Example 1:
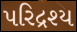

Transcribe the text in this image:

પરિદ્રશ્ય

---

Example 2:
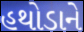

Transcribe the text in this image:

હથોડાને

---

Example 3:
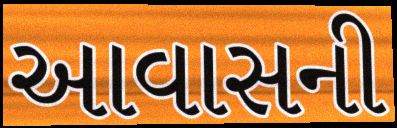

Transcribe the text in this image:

આવાસની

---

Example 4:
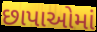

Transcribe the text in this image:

છાપાઓમાં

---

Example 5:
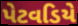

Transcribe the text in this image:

પેટવડિયે